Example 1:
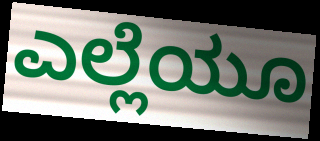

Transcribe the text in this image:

ಎಲ್ಲೆಯೂ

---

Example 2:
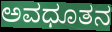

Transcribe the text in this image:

ಅವಧೂತನ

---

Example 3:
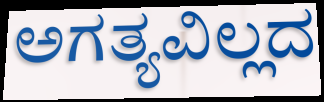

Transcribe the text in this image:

ಅಗತ್ಯವಿಲ್ಲದ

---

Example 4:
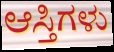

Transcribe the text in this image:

ಆಸ್ತಿಗಳು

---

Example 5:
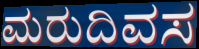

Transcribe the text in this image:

ಮರುದಿವಸ